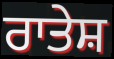
ਰਾਤੇਸ਼